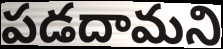
పడదామని